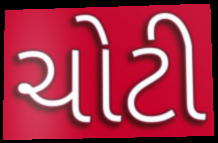
ચોટી